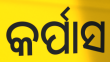
କର୍ପାସ